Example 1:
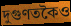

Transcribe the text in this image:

দুগুণতকৈও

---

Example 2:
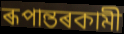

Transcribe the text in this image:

ৰূপান্তৰকামী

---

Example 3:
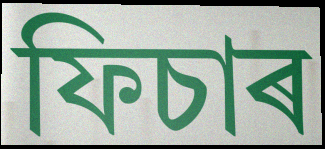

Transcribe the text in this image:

ফিচাৰ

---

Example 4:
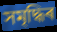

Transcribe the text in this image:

সমৃদ্ধিৰ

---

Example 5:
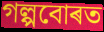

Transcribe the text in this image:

গল্পবোৰত